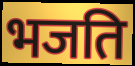
भजति